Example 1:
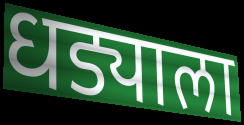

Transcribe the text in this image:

धड्याला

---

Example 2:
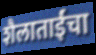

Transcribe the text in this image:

शैलाताईंचा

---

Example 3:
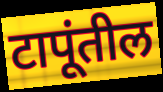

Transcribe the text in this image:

टापूंतील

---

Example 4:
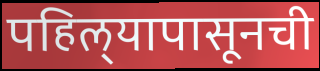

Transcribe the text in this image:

पहिल्यापासूनची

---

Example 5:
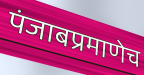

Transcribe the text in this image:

पंजाबप्रमाणेच